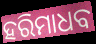
ହରିମାଧବ